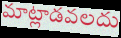
మాట్లాడవలదు